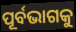
ପୂର୍ବଭାଗକୁ